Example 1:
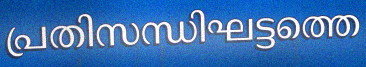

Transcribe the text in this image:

പ്രതിസന്ധിഘട്ടത്തെ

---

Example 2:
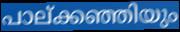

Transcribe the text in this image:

പാല്ക്കഞ്ഞിയും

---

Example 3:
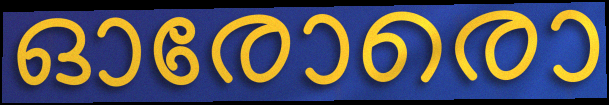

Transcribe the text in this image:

ഓരോരൊ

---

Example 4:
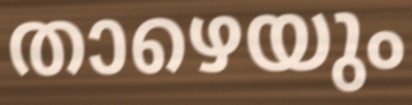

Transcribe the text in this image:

താഴെയും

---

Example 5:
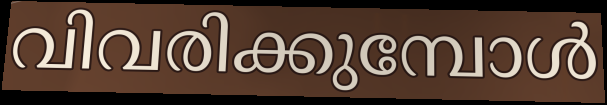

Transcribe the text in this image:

വിവരിക്കുമ്പോൾ